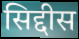
सिद्दीस